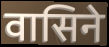
वासिने